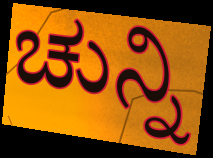
ಚುನ್ನಿ